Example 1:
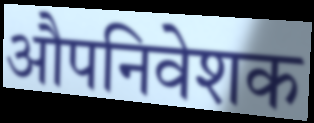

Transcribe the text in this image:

औपनिवेशक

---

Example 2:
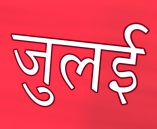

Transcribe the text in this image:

जुलई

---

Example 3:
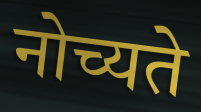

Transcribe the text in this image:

नोच्यते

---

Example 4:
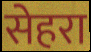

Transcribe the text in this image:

सेहरा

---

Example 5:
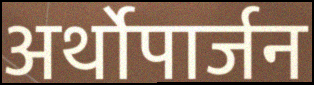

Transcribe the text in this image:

अर्थोपार्जन